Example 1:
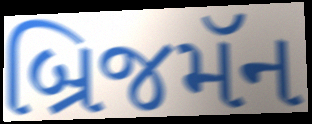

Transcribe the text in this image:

બ્રિજમૅન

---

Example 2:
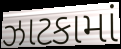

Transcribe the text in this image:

ઝાટકામાં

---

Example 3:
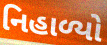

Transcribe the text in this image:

નિહાળ્યો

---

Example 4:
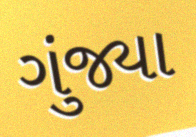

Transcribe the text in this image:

ગુંજ્યા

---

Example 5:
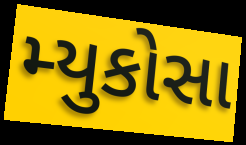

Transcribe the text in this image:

મ્યુકોસા